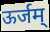
ऊर्जम्